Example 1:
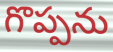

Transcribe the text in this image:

గొప్పను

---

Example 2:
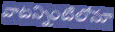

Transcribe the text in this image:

వాటన్నింటిలోనూ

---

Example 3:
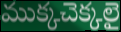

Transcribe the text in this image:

ముక్కచెక్కలై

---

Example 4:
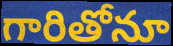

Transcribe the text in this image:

గారితోనూ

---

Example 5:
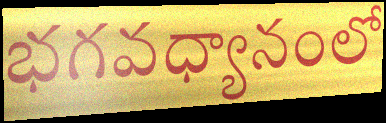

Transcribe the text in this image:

భగవధ్యానంలో